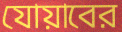
যোয়াবের